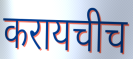
करायचीच